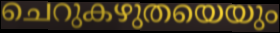
ചെറുകഴുതയെയും